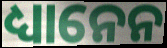
ଧ୍ୟାନେନ